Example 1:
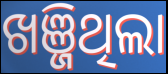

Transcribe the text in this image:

ଖଞ୍ଜିଥିଲା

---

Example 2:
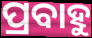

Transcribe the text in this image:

ପ୍ରବାହୁ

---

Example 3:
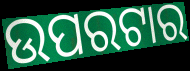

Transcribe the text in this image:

ଉପରଟାର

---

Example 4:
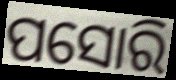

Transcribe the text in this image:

ପସୋରି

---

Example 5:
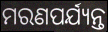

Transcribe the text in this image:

ମରଣପର୍ଯ୍ୟନ୍ତ